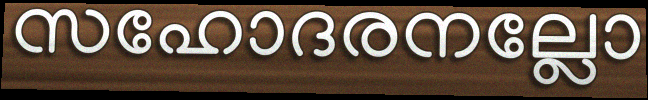
സഹോദരനല്ലോ